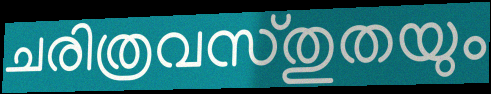
ചരിത്രവസ്തുതയും